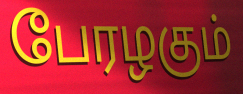
பேரழகும்